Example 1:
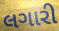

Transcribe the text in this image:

લગારી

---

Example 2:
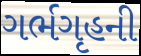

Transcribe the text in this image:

ગર્ભગૃહની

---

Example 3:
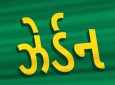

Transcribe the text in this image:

ઝેર્ડન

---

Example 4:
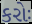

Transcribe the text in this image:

કરોઃ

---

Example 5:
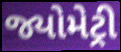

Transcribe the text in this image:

જ્યોમેટ્રી